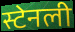
स्‍टेनली